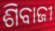
ଶିବାଜୀ